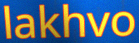
lakhvo